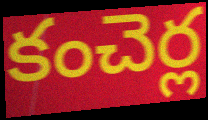
కంచెర్ల